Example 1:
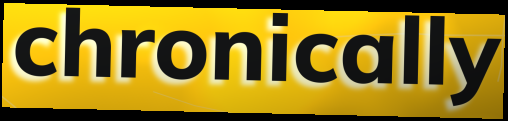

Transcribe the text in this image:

chronically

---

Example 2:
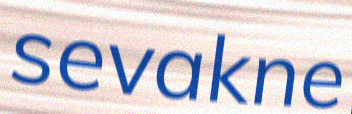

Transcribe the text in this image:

sevakne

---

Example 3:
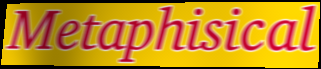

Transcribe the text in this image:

Metaphisical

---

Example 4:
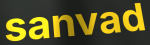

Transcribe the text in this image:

sanvad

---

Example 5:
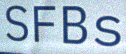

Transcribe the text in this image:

SFBs